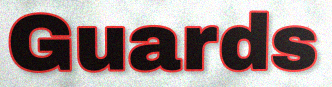
Guards